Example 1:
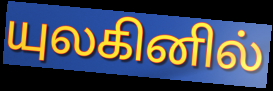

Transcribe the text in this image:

யுலகினில்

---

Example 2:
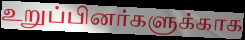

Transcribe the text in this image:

உறுப்பினர்களுக்காக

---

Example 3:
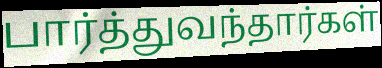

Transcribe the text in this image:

பார்த்துவந்தார்கள்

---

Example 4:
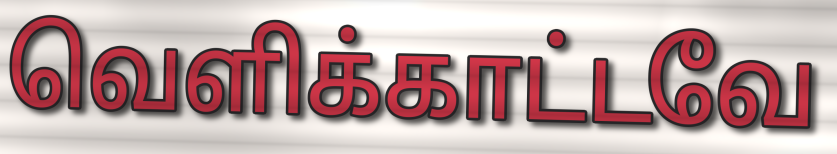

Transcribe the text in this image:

வெளிக்காட்டவே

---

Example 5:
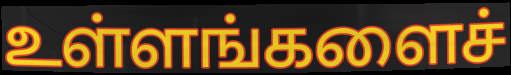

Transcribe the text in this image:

உள்ளங்களைச்